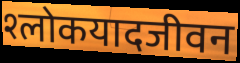
श्लोकयादजीवन